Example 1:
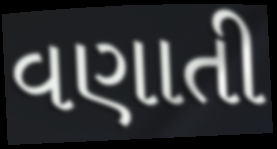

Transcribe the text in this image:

વણાતી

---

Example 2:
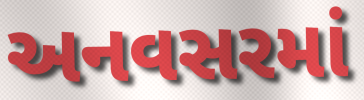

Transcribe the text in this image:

અનવસરમાં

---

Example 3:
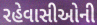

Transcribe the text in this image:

રહેવાસીઓની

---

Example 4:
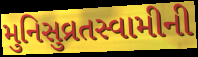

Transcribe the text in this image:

મુનિસુવ્રતસ્વામીની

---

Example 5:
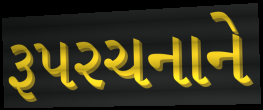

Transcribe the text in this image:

રૂપરચનાને